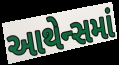
આથેન્સમાં